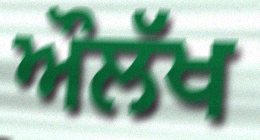
ਔਲੱਖ